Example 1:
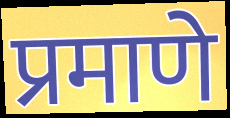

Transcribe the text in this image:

प्रमाणे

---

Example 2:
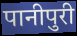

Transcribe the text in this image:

पानीपुरी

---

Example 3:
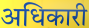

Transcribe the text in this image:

अधिकारी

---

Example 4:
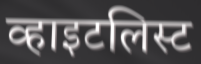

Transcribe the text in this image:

व्हाइटलिस्ट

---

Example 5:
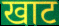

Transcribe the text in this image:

खाट